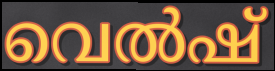
വെൽഷ്